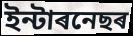
ইন্টাৰনেছৰ